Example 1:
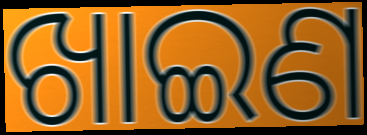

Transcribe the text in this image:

ଖାଇଣ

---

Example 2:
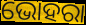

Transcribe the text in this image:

ଭୋହରା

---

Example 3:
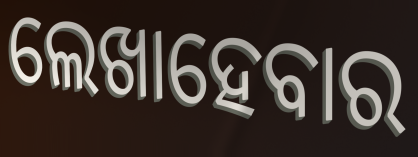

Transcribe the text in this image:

ଲେଖାହେବାର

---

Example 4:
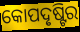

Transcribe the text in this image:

କୋପଦୃଷ୍ଟିର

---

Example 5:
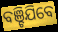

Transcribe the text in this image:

ବଞ୍ଚିଯିବେ